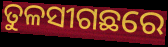
ତୁଳସୀଗଛରେ